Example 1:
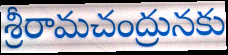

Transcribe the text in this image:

శ్రీరామచంద్రునకు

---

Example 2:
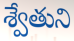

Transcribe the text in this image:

శ్వేతుని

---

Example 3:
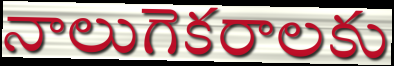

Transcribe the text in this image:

నాలుగెకరాలకు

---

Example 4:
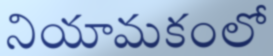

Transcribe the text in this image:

నియామకంలో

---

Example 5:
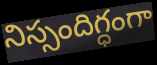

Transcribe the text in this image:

నిస్సందిగ్ధంగా